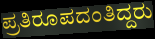
ಪ್ರತಿರೂಪದಂತಿದ್ದರು